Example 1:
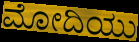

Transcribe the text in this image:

ಮೋದಿಯು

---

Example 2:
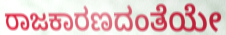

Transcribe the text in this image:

ರಾಜಕಾರಣದಂತೆಯೇ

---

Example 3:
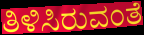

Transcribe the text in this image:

ತಿಳಿಸಿರುವಂತೆ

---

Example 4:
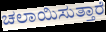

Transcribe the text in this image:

ಚಲಾಯಿಸುತ್ತಾರೆ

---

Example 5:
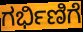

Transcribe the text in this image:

ಗರ್ಭಿಣಿಗೆ